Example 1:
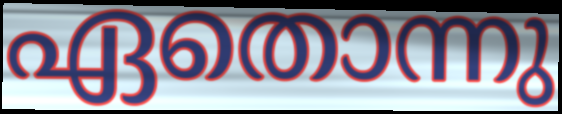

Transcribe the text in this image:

ഏതൊന്നു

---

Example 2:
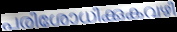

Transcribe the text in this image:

പരിശോധിക്കുകവഴി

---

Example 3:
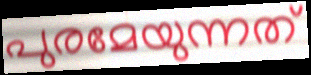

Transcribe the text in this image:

പുരമേയുന്നത്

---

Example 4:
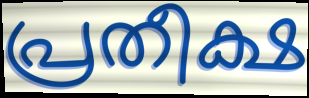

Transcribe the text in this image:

പ്രതീക്ഷ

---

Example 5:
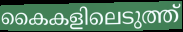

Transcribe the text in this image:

കൈകളിലെടുത്ത്